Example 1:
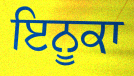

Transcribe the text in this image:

ਇਨੂਕਾ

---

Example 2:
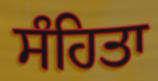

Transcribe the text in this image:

ਸੰਹਿਤਾ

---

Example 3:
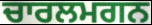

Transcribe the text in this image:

ਚਾਰਲਮਗਨ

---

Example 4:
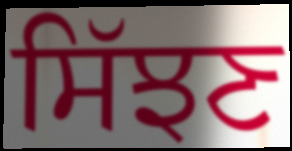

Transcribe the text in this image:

ਸਿੱਝਣ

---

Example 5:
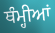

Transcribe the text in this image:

ਥੰਮ੍ਹੀਆਂ